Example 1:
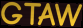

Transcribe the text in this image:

GTAW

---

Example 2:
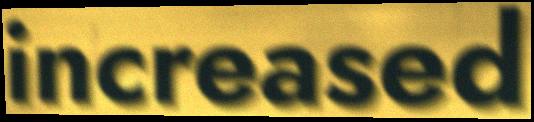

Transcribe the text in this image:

increased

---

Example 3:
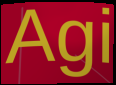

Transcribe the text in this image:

Agi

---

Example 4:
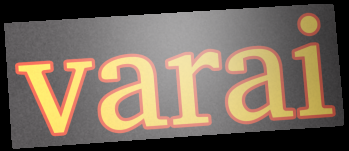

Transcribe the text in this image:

varai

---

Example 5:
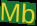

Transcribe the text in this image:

Mb